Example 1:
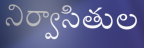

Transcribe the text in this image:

నిర్వాసితుల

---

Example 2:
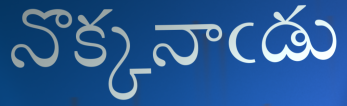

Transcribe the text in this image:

నొక్కనాఁడు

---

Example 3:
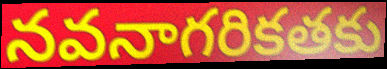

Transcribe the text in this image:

నవనాగరికతకు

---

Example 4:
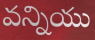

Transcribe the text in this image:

వన్నియు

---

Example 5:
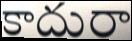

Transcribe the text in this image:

కాదురా